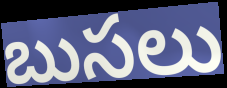
బుసలు